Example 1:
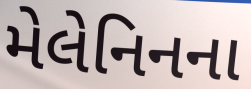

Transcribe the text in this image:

મેલેનિનના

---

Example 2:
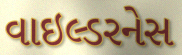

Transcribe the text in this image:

વાઇલ્ડરનેસ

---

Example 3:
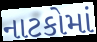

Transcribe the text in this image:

નાટકોમાં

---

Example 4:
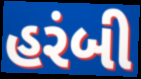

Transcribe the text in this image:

હરંબી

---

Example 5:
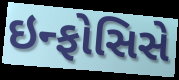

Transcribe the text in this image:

ઇન્ફોસિસે